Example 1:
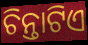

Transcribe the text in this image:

ଚିନ୍ତାଟିଏ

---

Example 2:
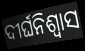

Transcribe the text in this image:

ଦୀର୍ଘନିଶ୍ବାସ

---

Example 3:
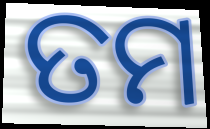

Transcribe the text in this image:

ତମ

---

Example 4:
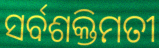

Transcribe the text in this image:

ସର୍ବଶକ୍ତିମତୀ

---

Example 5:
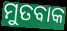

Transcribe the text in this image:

ମୁତବାକ